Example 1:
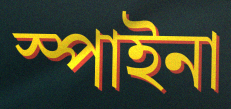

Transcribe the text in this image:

স্পাইনা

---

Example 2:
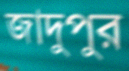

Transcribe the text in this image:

জাদুপুর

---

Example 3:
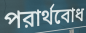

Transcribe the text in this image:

পরার্থবোধ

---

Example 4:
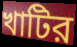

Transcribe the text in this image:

খাটির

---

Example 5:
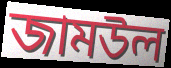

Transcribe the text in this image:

জামউল